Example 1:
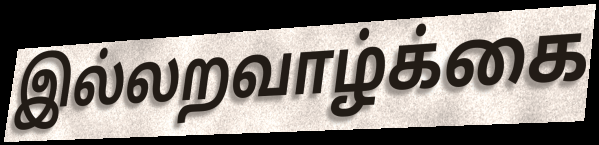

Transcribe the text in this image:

இல்லறவாழ்க்கை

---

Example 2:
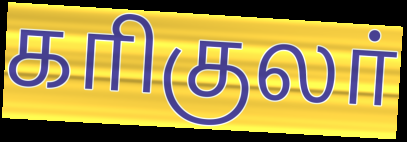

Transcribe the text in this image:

கரிகுலர்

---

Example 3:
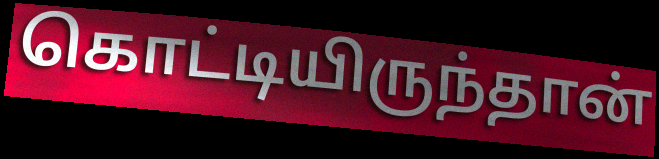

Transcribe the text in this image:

கொட்டியிருந்தான்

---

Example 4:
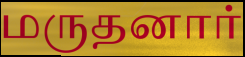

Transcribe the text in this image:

மருதனார்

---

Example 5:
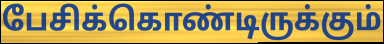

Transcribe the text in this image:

பேசிக்கொண்டிருக்கும்